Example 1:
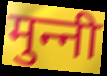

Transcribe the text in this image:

मुन्नी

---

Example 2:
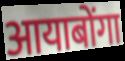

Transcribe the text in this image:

आयाबोंगा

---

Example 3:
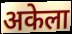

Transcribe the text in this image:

अकेला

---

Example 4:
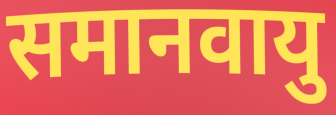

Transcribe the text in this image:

समानवायु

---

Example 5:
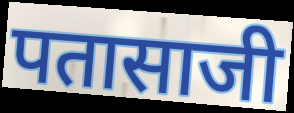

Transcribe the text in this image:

पतासाजी